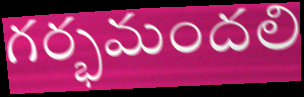
గర్భమందలి